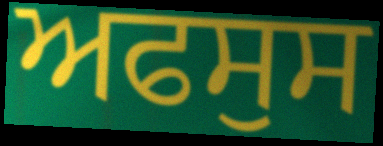
ਅਫਸੁਸ